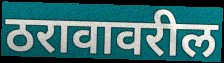
ठरावावरील